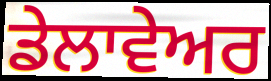
ਡੇਲਾਵੇਅਰ